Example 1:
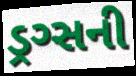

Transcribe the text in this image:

ડ્રગ્સની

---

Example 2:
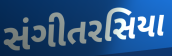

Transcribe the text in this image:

સંગીતરસિયા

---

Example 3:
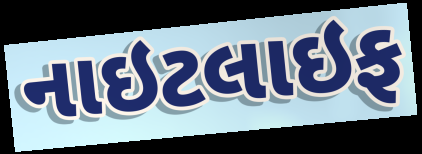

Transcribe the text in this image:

નાઇટલાઇફ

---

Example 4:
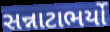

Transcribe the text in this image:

સન્નાટાભર્યો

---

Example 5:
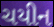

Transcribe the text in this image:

ચયીન